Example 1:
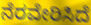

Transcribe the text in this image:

ನೆರವೇರಿಸಿದೆ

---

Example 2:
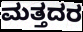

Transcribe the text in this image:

ಮತ್ತದರ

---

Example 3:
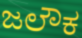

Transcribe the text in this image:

ಜಲೌಕ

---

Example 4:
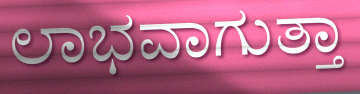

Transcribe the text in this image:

ಲಾಭವಾಗುತ್ತಾ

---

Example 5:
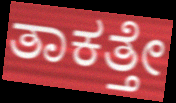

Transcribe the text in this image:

ತಾಕತ್ತೇ